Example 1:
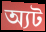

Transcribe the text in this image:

অ্যট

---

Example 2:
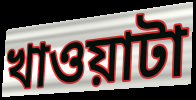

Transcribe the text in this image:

খাওয়াটা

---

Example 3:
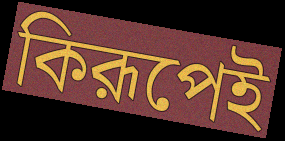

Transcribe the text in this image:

কিরূপেই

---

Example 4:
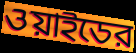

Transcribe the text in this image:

ওয়াইডের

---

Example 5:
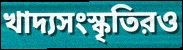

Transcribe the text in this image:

খাদ্যসংস্কৃতিরও